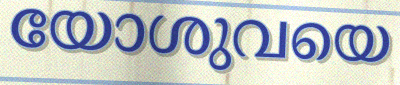
യോശുവയെ